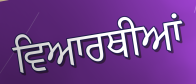
ਵਿਆਰਥੀਆਂ